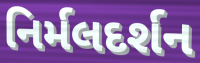
નિર્મલદર્શન